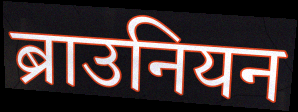
ब्राउनियन